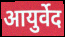
आयुर्वेद